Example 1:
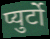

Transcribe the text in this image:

प्युर्टो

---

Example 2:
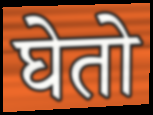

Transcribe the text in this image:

घेतो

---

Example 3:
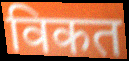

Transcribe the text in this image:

विकत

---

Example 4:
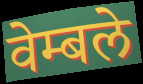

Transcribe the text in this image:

वेम्बले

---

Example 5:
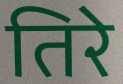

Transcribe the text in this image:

तिरे